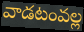
వాడటంవల్ల